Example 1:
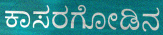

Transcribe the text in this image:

ಕಾಸರಗೋಡಿನ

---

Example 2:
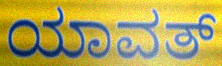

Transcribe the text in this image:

ಯಾವತ್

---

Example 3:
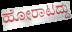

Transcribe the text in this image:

ಹೋರಾಟದ್ದು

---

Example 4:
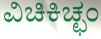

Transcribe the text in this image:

ವಿಚಿಕಿಚ್ಛಂ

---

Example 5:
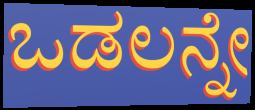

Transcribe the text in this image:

ಒಡಲನ್ನೇ